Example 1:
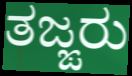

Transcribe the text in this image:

ತಜ್ಙರು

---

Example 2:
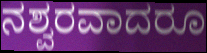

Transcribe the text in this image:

ನಶ್ವರವಾದರೂ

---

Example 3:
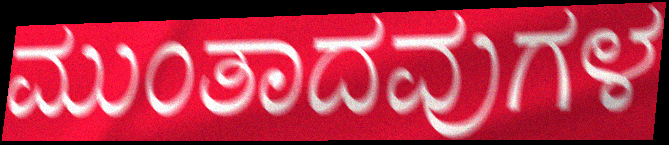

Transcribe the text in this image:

ಮುಂತಾದವುಗಳ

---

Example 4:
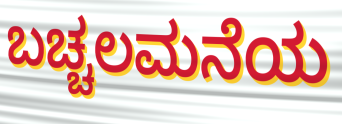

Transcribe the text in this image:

ಬಚ್ಚಲಮನೆಯ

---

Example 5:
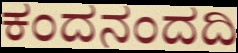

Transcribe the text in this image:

ಕಂದನಂದದಿ